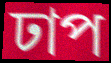
ঢাপ